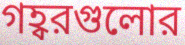
গহ্বরগুলোর